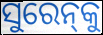
ସୁରେନ୍‌କୁ